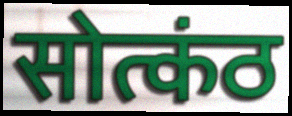
सोत्कंठ